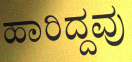
ಹಾರಿದ್ದವು